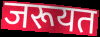
जरूयत